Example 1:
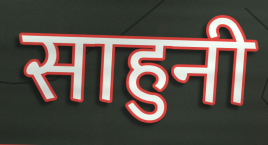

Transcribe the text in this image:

साहुनी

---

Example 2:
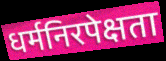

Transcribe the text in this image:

धर्मनिरपेक्षता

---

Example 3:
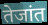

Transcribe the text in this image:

तेजांत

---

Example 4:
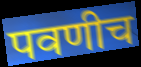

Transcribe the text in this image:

पवणीच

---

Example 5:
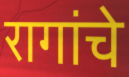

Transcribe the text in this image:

रागांचे